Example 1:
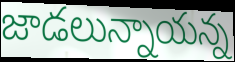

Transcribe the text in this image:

జాడలున్నాయన్న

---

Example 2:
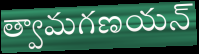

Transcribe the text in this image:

త్వామగణయన్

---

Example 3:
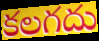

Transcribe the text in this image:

కలగదు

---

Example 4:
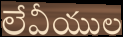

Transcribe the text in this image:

లేవీయుల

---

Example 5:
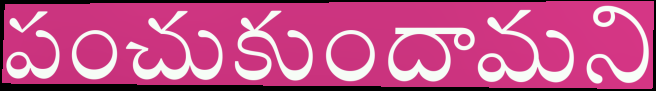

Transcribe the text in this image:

పంచుకుందామని